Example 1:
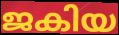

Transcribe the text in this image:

ജകിയ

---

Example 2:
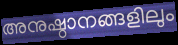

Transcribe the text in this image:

അനുഷ്ഠാനങ്ങളിലും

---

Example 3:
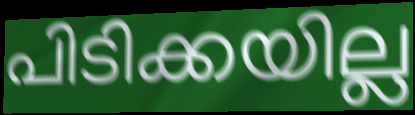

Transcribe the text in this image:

പിടിക്കയില്ല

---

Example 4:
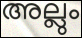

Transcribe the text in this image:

അല്ലും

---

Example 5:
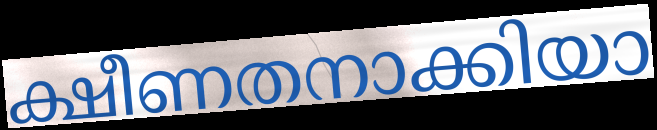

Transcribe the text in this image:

ക്ഷീണതനാക്കിയാ